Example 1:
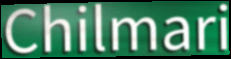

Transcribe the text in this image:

Chilmari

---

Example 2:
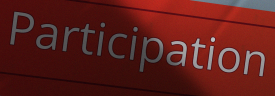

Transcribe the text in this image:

Participation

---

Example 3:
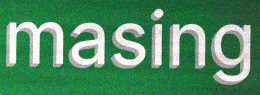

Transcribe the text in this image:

masing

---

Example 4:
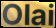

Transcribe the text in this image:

Olai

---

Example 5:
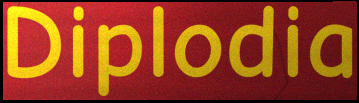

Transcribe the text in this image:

Diplodia